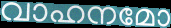
വാഹനമോ